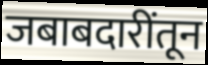
जबाबदारींतून